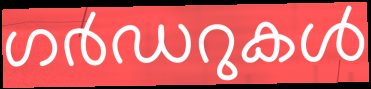
ഗർഡറുകൾ